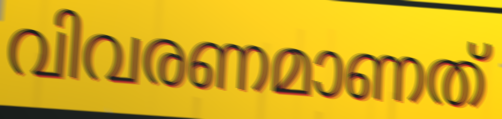
വിവരണമാണത്